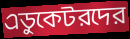
এডুকেটরদের